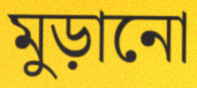
মুড়ানো